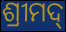
ଶ୍ରୀମଦ୍